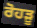
ਰੋਹੜੂ